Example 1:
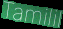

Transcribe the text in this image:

Tamilil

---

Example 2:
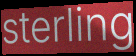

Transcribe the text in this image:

sterling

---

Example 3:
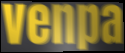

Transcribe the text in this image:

venpa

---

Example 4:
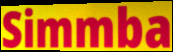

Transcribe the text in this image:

Simmba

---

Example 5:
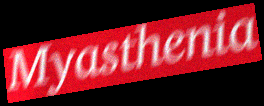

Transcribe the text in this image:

Myasthenia